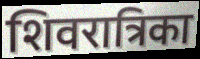
शिवरात्रिका